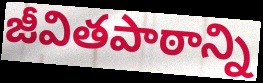
జీవితపాఠాన్ని